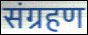
संग्रहण